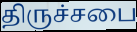
திருச்சபை